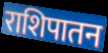
राशिपातन